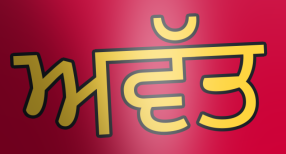
ਅਵੱਤ